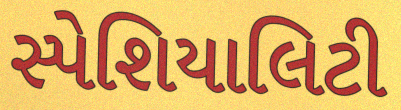
સ્પેશિયાલિટી